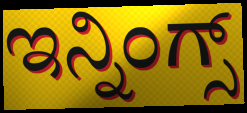
ಇನ್ನಿಂಗ್ಸ್